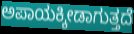
ಅಪಾಯಕ್ಕೀಡಾಗುತ್ತದೆ